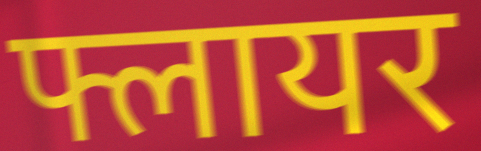
फ्लायर